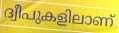
ദ്വീപുകളിലാണ്